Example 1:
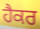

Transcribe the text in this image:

ਹੈਕਰ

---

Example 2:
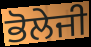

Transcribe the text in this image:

ਭੋਲੇਜੀ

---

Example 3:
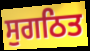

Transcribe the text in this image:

ਸੁਗਠਿਤ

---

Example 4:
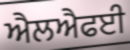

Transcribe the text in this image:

ਐਲਐਫਈ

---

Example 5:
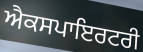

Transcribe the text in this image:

ਐਕਸਪਾਇਰਟਰੀ